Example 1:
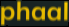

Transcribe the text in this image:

phaal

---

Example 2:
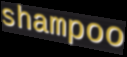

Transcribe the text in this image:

shampoo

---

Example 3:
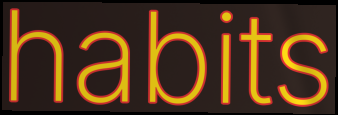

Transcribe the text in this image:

habits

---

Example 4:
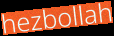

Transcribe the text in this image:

hezbollah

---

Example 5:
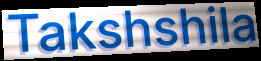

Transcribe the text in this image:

Takshshila